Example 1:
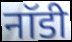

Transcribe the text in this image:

नॉडी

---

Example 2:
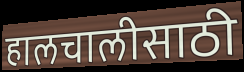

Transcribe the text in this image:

हालचालीसाठी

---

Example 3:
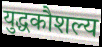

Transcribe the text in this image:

युद्धकौशल्य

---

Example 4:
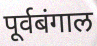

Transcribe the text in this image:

पूर्वबंगाल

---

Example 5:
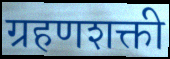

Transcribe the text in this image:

ग्रहणशक्ती